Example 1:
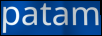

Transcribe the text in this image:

patam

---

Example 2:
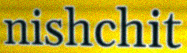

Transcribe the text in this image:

nishchit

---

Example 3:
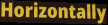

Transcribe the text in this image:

Horizontally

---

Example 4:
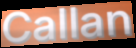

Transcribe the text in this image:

Callan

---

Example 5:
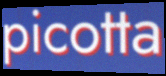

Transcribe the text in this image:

picotta